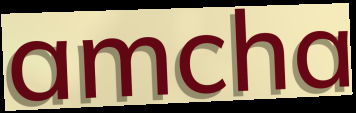
amcha